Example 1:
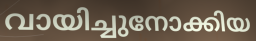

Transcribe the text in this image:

വായിച്ചുനോക്കിയ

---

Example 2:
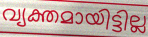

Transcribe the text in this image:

വ്യക്തമായിട്ടില്ല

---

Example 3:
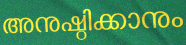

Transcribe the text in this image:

അനുഷ്ഠിക്കാനും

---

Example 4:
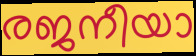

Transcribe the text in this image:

രജനീയാ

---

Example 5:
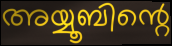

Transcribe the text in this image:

അയ്യൂബിന്റെ